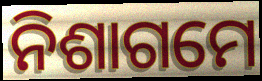
ନିଶାଗମେ